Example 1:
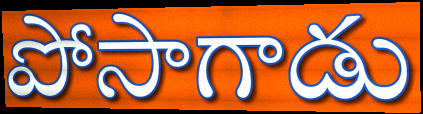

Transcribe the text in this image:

పోసాగాడు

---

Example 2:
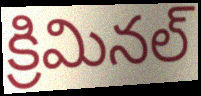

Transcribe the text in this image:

క్రిమినల్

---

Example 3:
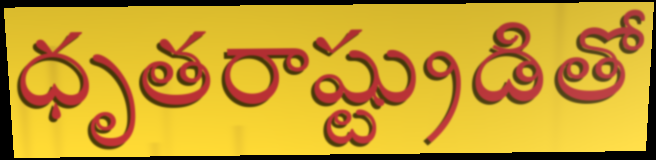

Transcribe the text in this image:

ధృతరాష్ట్రుడితో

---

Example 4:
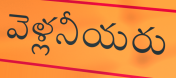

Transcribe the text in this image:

వెళ్లనీయరు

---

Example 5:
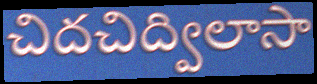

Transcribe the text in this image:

చిదచిద్విలాసా